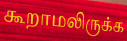
கூறாமலிருக்க